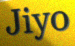
Jiyo